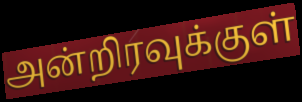
அன்றிரவுக்குள்